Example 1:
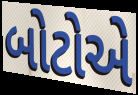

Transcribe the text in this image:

બોટોએ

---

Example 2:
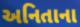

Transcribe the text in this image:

અનિતાના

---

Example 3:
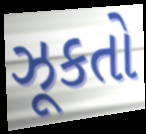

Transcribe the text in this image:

ઝૂકતો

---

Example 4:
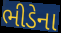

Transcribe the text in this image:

ભીડેના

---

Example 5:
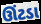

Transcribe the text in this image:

ઊંટડા